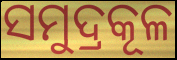
ସମୁଦ୍ରକୂଳ